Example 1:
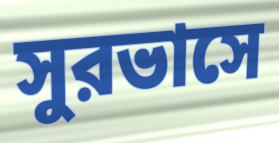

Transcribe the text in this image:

সুরভাসে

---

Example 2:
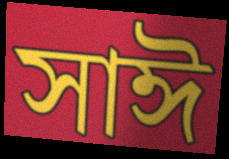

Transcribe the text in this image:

সাঈ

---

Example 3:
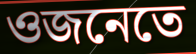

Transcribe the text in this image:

ওজনেতে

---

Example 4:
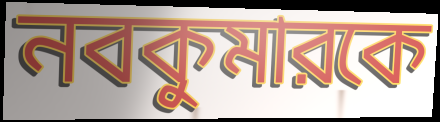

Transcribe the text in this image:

নবকুমারকে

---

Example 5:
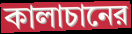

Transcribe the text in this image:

কালাচানের